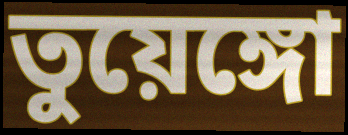
তুয়েঙ্গো